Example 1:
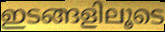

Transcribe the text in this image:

ഇടങ്ങളിലൂടെ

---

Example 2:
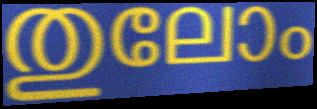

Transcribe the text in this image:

തുലോം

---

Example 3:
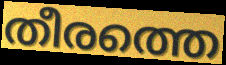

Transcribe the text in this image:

തീരത്തെ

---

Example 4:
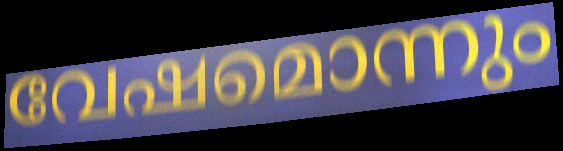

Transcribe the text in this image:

വേഷമൊന്നും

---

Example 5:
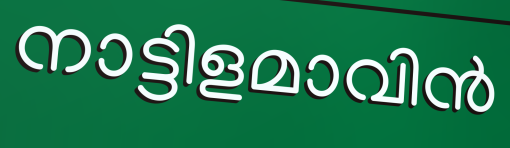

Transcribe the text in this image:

നാട്ടിളമാവിൻ